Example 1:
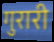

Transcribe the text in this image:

गुरारी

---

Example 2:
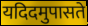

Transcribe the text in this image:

यदिदमुपासते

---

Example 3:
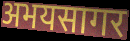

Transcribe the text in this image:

अभयसागर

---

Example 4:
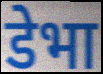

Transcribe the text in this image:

डेभा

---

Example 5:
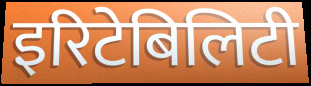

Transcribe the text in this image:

इरिटेबिलिटी